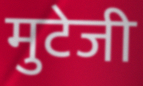
मुटेजी